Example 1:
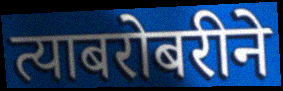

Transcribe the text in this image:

त्याबरोबरीने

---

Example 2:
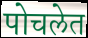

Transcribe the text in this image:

पोचलेत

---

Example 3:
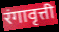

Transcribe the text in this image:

रंगावृत्ती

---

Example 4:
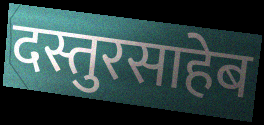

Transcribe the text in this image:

दस्तुरसाहेब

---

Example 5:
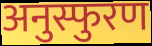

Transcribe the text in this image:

अनुस्फुरण